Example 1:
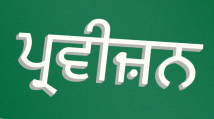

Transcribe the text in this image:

ਪ੍ਰਵੀਜ਼ਨ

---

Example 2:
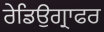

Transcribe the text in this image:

ਰੇਡਿਉਗ੍ਰਾਫਰ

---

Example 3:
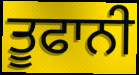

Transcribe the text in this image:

ਤੂਫਾਨੀ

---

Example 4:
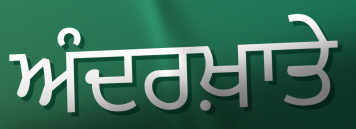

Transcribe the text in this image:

ਅੰਦਰਖ਼ਾਤੇ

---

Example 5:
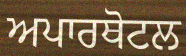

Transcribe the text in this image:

ਅਪਾਰਥੋਟਲ